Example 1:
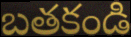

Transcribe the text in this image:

బతకండి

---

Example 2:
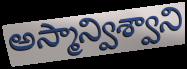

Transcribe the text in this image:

అస్మాన్విశ్వాని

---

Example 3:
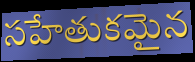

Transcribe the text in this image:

సహేతుకమైన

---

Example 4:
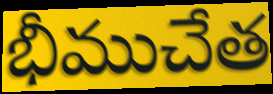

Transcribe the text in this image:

భీముచేత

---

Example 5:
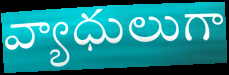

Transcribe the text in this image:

వ్యాధులుగా